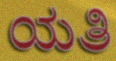
ಯತಿ